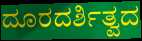
ದೂರದರ್ಶಿತ್ವದ